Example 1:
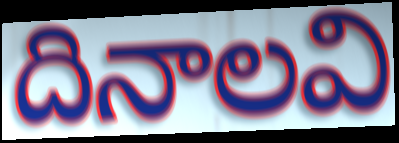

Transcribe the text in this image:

దినాలవి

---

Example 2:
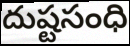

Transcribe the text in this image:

దుష్టసంధి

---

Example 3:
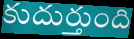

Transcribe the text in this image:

కుదుర్తుంది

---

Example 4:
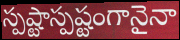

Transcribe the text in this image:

స్పష్టాస్పష్టంగానైనా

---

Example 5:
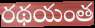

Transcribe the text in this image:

రథయంత